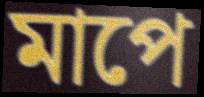
মাপে